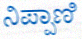
ನಿಪ್ಪಾಣಿ